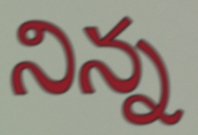
నిన్న